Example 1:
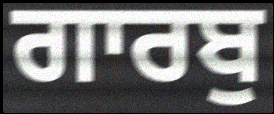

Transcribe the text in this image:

ਗਾਰਬੁ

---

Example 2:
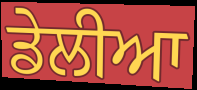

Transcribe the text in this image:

ਡੇਲੀਆ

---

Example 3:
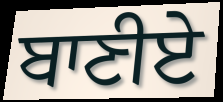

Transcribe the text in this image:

ਬਾਣੀਏ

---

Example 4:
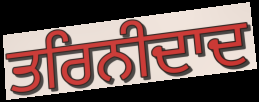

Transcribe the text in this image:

ਤਰਿਨੀਦਾਦ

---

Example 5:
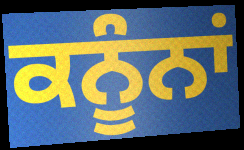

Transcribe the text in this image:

ਕਨੂੰਨਾਂ